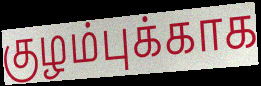
குழம்புக்காக